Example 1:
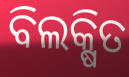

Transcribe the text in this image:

ବିଲକ୍ଷିତ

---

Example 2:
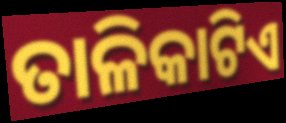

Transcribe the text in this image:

ତାଳିକାଟିଏ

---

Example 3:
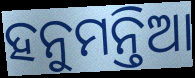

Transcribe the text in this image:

ହନୁମନ୍ତିଆ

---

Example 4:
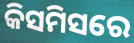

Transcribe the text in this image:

କିସମିସରେ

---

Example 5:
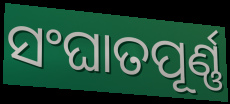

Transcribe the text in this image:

ସଂଘାତପୂର୍ଣ୍ଣ